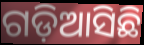
ଗଡ଼ିଆସିଛି